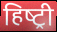
हिष्ट्री